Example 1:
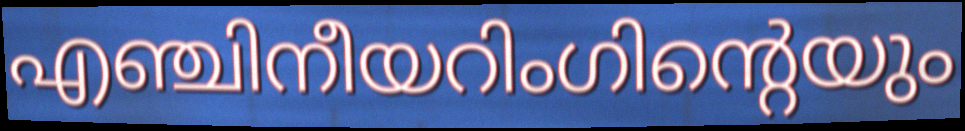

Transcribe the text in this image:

എഞ്ചിനീയറിംഗിന്റെയും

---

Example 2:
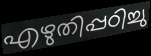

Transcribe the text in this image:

എഴുതിപ്പഠിച്ചു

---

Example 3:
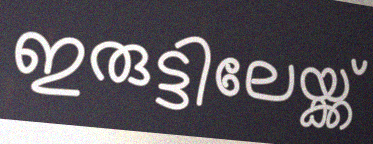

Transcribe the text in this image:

ഇരുട്ടിലേയ്ക്ക്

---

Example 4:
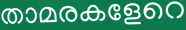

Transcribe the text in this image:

താമരകളേറെ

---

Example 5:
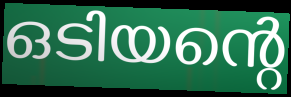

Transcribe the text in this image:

ഒടിയന്റെ